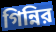
গিন্নির